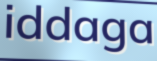
iddaga